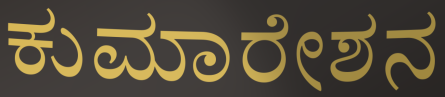
ಕುಮಾರೇಶನ